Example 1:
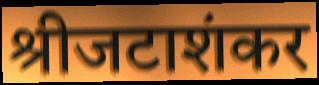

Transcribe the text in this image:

श्रीजटाशंकर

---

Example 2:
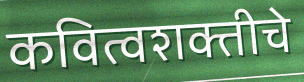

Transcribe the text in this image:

कवित्वशक्तीचे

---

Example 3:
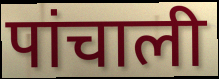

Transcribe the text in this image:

पांचाली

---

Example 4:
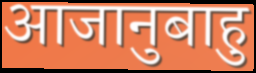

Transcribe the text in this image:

आजानुबाहु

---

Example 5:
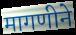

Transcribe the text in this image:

मागणीने